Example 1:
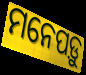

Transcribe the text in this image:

ମନେପଡ଼ୁ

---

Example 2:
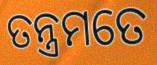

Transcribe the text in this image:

ତନ୍ତ୍ରମତେ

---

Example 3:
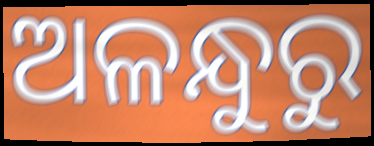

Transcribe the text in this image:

ଅଳନ୍ଧୁରୁ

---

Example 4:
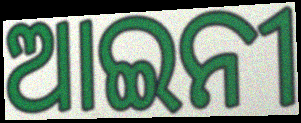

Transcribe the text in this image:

ଆଇନୀ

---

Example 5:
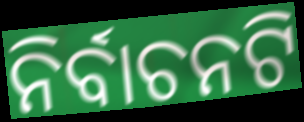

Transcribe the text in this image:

ନିର୍ବାଚନଟି